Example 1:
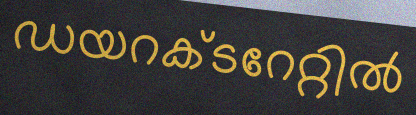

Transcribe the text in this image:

ഡയറക്ടറേറ്റിൽ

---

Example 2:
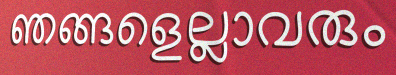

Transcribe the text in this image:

ഞങ്ങളെല്ലാവരും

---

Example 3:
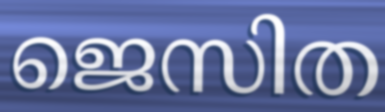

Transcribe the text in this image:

ജെസിത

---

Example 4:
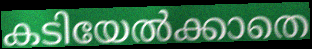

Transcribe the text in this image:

കടിയേൽക്കാതെ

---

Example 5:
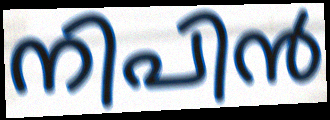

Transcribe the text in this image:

നിപിൻ